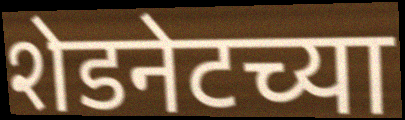
शेडनेटच्या